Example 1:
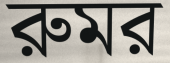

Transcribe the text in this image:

রুমর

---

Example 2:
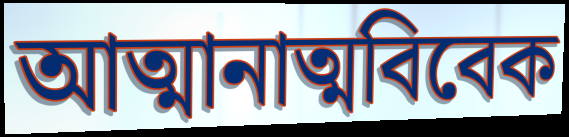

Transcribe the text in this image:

আত্মানাত্মবিবেক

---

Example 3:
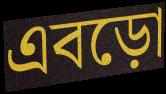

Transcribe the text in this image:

এবড়ো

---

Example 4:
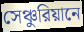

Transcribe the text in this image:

সেঞ্চুরিয়ানে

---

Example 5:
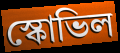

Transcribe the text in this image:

স্কোভিল